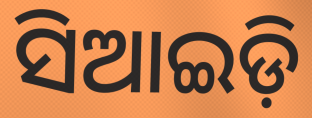
ସିଆଇଡ଼ି